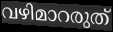
വഴിമാറരുത്